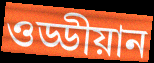
ওড্ডীয়ান